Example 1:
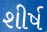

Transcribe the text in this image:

શીર્ષ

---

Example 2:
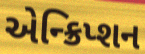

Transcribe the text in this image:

એન્ક્રિપ્શન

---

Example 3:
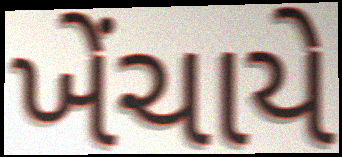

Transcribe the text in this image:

ખેંચાયે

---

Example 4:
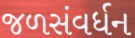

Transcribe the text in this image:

જળસંવર્ધન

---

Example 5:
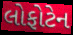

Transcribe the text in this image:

લોફોટેન